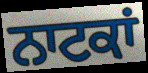
ਨਾਟਕਾਂ